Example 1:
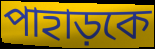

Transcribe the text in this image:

পাহাড়কে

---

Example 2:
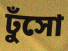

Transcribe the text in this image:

ঢুঁসো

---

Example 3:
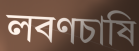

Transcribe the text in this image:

লবণচাষি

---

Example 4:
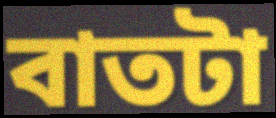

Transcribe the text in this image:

বাতটা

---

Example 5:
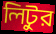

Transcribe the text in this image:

লিটুর